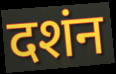
दशंन